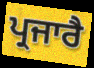
ਪ੍ਰਜਾਰੈ